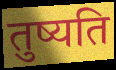
तुष्यति